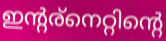
ഇന്റര്നെറ്റിന്റെ